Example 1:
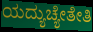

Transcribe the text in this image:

ಯದ್ಯುಚ್ಯೇತೇತಿ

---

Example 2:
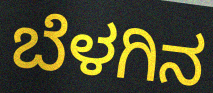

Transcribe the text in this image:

ಬೆಳಗಿನ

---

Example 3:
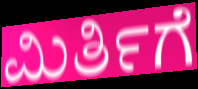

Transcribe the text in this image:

ಮಿರ್ತಿಗೆ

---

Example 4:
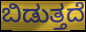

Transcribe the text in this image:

ಬಿಡುತ್ತದೆ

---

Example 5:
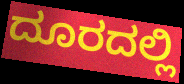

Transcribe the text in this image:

ದೂರದಲ್ಲಿ